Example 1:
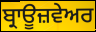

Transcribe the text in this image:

ਬ੍ਰਾਊਜ਼ਵੇਅਰ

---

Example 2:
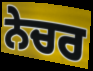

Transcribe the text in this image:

ਨੇਚਰ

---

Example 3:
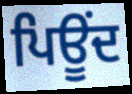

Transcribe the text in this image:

ਪਿਊਂਦ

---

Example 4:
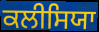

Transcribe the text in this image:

ਕਲੀਸਿਯਾ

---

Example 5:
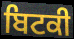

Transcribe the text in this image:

ਬਿਟਕੀ